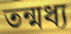
তন্মধ্য